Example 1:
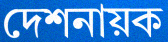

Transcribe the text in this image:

দেশনায়ক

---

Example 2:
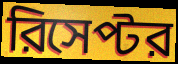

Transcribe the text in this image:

রিসেপ্টর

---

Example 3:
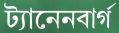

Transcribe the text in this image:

ট্যানেনবার্গ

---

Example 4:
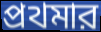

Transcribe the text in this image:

প্রথমার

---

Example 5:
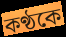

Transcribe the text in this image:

কণ্ঠকে